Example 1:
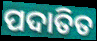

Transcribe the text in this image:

ପଦାତିତ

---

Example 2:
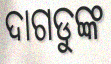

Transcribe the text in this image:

ଦାଗଡୁଙ୍କ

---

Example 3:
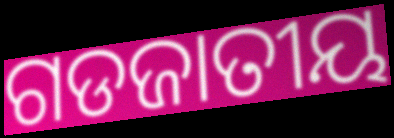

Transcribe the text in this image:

ଗଡଜାତୀୟ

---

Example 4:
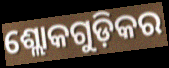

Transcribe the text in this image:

ଶ୍ଲୋକଗୁଡ଼ିକର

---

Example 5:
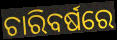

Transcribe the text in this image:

ଚାରିବର୍ଷରେ